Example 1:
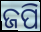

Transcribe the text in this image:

ଜପି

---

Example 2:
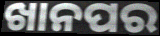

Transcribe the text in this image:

ଖାନପର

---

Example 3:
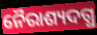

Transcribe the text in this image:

ନୈରାଶ୍ୟଦଗ୍ଧ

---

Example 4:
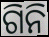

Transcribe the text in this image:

ଗିନି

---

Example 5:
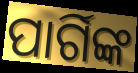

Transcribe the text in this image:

ପାର୍ଗିଙ୍କ